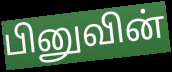
பினுவின்